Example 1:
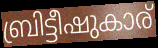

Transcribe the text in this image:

ബ്രിട്ടീഷുകാര്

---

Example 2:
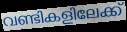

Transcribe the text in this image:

വണ്ടികളിലേക്ക്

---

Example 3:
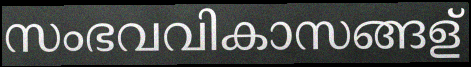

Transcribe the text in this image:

സംഭവവികാസങ്ങള്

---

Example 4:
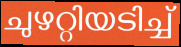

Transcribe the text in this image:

ചുഴറ്റിയടിച്ച്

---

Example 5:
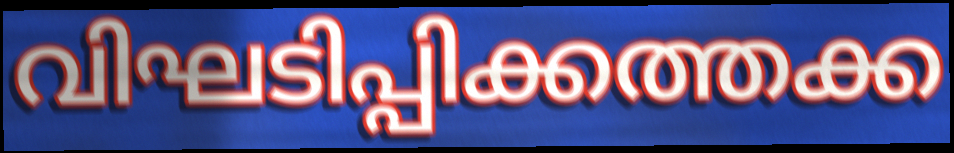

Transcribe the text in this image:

വിഘടിപ്പിക്കത്തക്ക